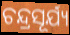
ଚନ୍ଦ୍ରସୂର୍ଯ୍ୟ